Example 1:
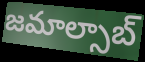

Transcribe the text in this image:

జమాల్సాబ్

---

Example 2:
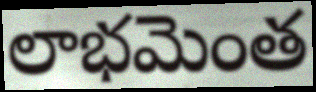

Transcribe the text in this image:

లాభమెంత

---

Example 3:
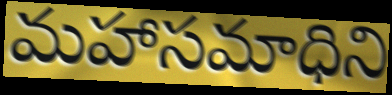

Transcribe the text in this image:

మహాసమాధిని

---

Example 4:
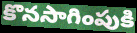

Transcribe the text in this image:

కొనసాగింపుకి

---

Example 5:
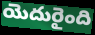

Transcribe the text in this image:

యెదురైంది